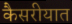
कैसरीयात